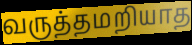
வருத்தமறியாத